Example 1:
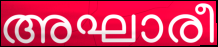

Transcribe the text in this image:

അഘാരീ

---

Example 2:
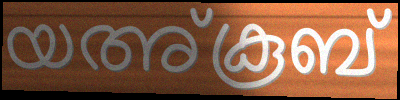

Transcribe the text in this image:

യഅ്കൂബ്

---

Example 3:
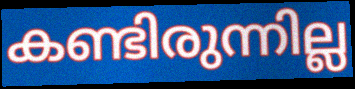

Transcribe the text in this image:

കണ്ടിരുന്നില്ല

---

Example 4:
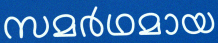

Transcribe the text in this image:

സമർഥമായ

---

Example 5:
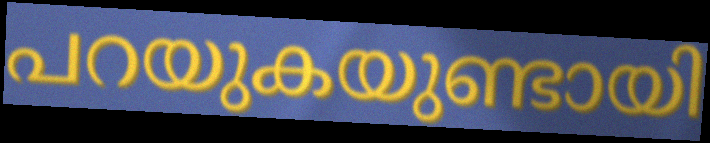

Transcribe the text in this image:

പറയുകയുണ്ടായി